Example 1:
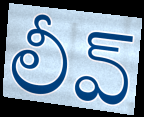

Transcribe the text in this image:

లీవ్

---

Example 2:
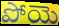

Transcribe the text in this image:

పోయె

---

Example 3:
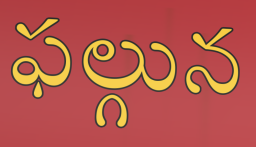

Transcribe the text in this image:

ఫల్గున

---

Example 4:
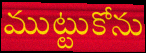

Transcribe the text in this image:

ముట్టుకోను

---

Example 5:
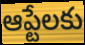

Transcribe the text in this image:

ఆప్టేలకు